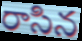
రాసిన